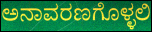
ಅನಾವರಣಗೊಳ್ಳಲಿ